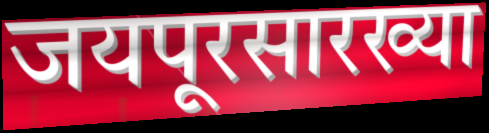
जयपूरसारख्या